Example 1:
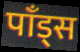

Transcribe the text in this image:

पाँड्स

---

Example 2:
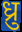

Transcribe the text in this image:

ध्रु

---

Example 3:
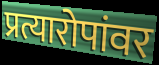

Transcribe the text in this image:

प्रत्यारोपांवर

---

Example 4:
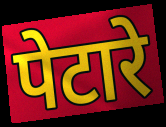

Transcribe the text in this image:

पेटारे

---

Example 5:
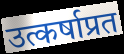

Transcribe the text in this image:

उत्कर्षाप्रत